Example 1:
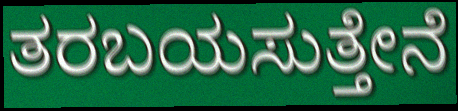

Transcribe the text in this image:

ತರಬಯಸುತ್ತೇನೆ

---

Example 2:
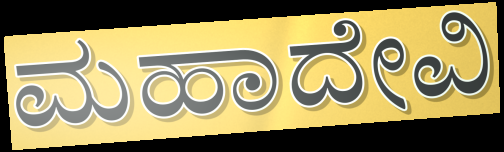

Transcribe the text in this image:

ಮಹಾದೇವಿ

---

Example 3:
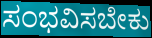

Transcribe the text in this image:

ಸಂಭವಿಸಬೇಕು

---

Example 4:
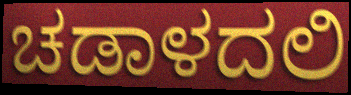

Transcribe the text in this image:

ಚಡಾಳದಲಿ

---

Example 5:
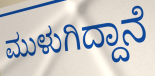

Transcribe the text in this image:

ಮುಳುಗಿದ್ದಾನೆ